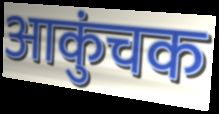
आकुंचक